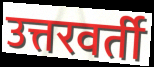
उत्तरवर्ती